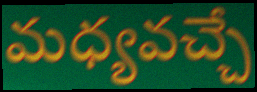
మధ్యవచ్చే